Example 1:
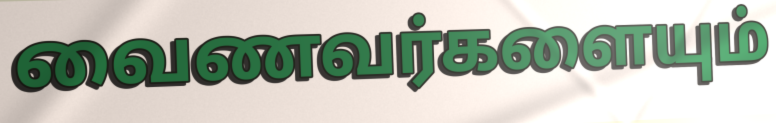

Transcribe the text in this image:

வைணவர்களையும்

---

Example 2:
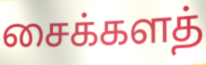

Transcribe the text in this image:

சைக்களத்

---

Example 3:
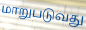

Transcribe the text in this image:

மாறுபடுவது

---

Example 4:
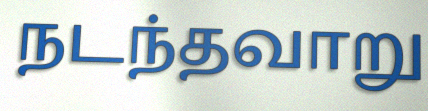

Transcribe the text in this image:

நடந்தவாறு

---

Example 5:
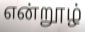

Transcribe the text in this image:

என்றூழ்